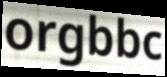
orgbbc